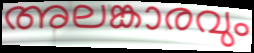
അലങ്കാരവും